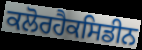
ਕਲੋਰਹੈਕਸਿਡੀਨ